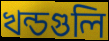
খন্ডগুলি